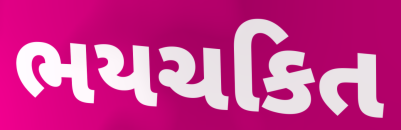
ભયચકિત